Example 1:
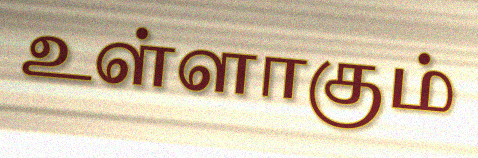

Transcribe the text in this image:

உள்ளாகும்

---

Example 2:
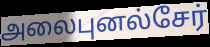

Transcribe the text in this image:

அலைபுனல்சேர்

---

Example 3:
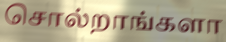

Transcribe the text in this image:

சொல்றாங்களா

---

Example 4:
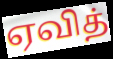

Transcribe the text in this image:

ஏவித்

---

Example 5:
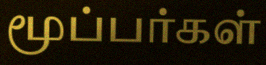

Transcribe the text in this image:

மூப்பர்கள்